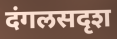
दंगलसदृश